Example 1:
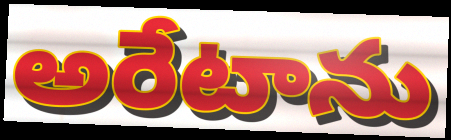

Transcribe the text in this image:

అరేటాను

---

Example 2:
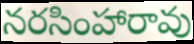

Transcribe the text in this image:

నరసింహారావు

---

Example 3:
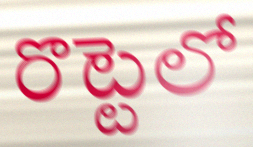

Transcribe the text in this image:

రొట్టెలో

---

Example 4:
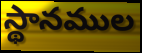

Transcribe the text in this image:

స్థానముల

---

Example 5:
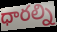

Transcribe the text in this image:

ధారల్ని